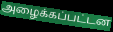
அழைக்கப்பட்டன